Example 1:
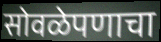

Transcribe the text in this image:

सोवळेपणाचा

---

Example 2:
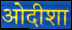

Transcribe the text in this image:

ओदीशा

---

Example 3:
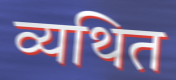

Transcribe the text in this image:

व्यथित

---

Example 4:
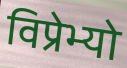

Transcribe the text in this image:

विप्रेभ्यो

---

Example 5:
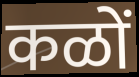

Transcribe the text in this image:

कळों